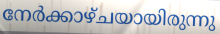
നേർക്കാഴ്ചയായിരുന്നു